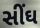
સીંઘ